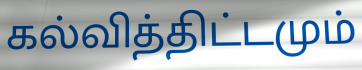
கல்வித்திட்டமும்